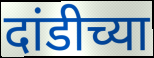
दांडीच्या